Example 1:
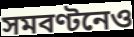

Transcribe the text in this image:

সমবণ্টনেও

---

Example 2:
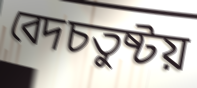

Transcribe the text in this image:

বেদচতুষ্টয়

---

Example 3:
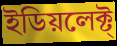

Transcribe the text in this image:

ইডিয়লেক্ট্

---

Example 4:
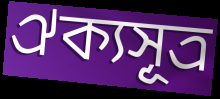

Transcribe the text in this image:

ঐক্যসূত্র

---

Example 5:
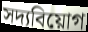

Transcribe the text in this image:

সদ্যবিয়োগ